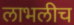
लाभलीच